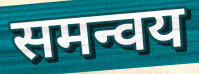
समन्वय